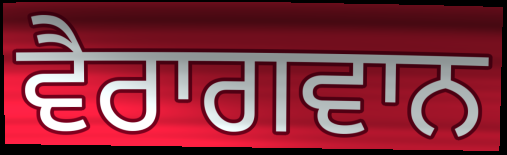
ਵੈਰਾਗਵਾਨ